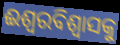
ଈଶ୍ୱରବିଶ୍ୱାସକୁ